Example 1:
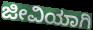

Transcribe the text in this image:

ಜೀವಿಯಾಗಿ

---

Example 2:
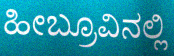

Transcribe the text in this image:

ಹೀಬ್ರೂವಿನಲ್ಲಿ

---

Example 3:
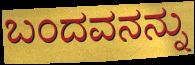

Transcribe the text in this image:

ಬಂದವನನ್ನು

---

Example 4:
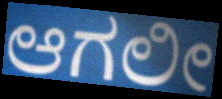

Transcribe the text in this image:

ಆಗಲೀ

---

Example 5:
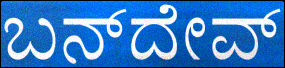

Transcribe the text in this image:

ಬನ್‌ದೇವ್